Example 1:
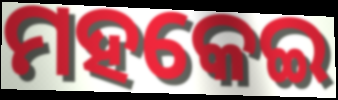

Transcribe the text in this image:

ମହକେଇ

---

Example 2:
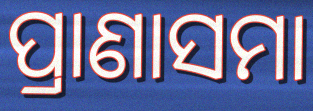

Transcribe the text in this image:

ପ୍ରାଣାସମା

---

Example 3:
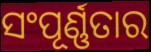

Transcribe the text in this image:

ସଂପୂର୍ଣ୍ଣତାର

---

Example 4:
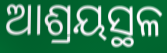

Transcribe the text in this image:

ଆଶ୍ରୟସ୍ଥଳ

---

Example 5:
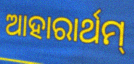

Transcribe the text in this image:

ଆହାରାର୍ଥମ୍